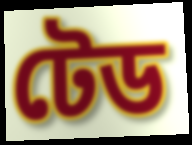
টেড